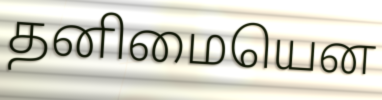
தனிமையென